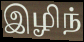
இழிந்